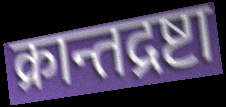
क्रान्तद्रष्टा